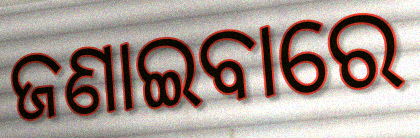
ଜଣାଇବାରେ